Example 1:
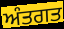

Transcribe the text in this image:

ਅੰਤਗਤ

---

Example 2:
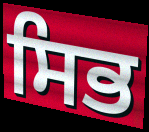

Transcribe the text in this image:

ਸਿਭ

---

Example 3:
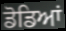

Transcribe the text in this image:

ਡੋਡਿਆਂ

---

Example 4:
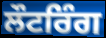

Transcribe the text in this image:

ਲੌਟਰਿੰਗ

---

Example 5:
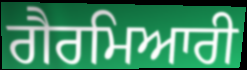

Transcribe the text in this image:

ਗੈਰਮਿਆਰੀ